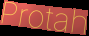
Protah